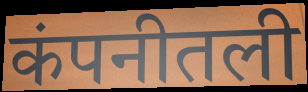
कंपनीतली